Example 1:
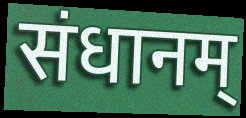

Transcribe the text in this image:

संधानम्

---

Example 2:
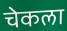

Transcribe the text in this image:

चेकला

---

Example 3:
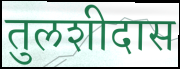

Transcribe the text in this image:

तुलशीदास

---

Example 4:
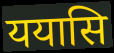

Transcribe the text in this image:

ययासि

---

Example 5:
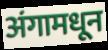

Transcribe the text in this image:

अंगामधून